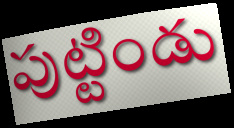
పుట్టిండు